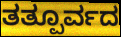
ತತ್ಪೂರ್ವದ